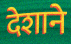
देशाने